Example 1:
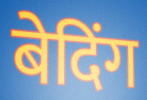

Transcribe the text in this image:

बेदिंग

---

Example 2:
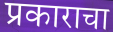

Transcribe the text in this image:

प्रकाराचा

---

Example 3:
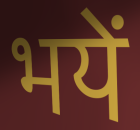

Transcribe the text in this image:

भयें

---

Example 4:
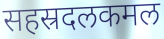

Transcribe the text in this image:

सहस्रदलकमल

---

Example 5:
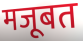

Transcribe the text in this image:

मजूबत